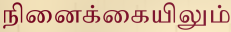
நினைக்கையிலும்